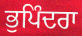
ਭੁਪਿੰਦਰਾ